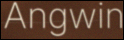
Angwin